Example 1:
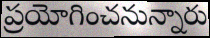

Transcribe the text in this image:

ప్రయోగించనున్నారు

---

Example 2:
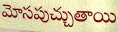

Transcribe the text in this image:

మోసపుచ్చుతాయి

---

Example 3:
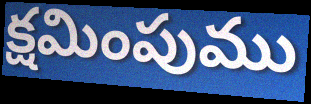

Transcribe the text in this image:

క్షమింపుము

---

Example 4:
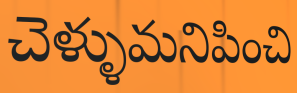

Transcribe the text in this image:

చెళ్ళుమనిపించి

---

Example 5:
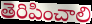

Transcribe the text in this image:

తెరిపించాలి